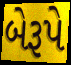
બેરૂપે